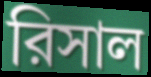
রিসাল